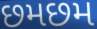
છમછમ